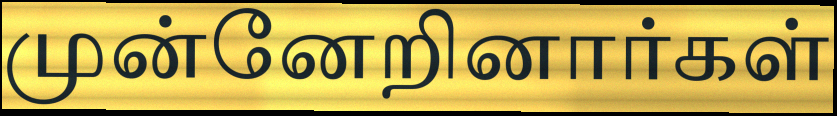
முன்னேறினார்கள்